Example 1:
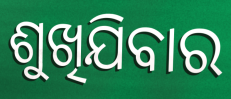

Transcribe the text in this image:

ଶୁଖିଯିବାର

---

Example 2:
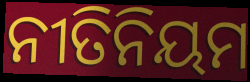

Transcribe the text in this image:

ନୀତିନିୟମ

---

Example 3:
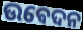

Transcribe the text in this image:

ଉଵେଦନ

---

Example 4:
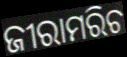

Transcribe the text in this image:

ଜୀରାମରିଚ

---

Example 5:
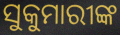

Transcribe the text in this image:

ସୁକୁମାରୀଙ୍କ